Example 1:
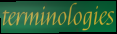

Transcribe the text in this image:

terminologies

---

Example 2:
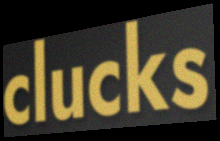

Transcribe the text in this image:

clucks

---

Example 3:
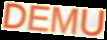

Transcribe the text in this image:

DEMU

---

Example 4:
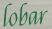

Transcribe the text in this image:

lobar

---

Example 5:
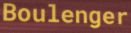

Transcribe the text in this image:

Boulenger